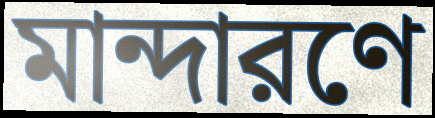
মান্দারণে